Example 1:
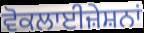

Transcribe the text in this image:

ਵੋਕਲਾਈਜ਼ੇਸ਼ਨਾਂ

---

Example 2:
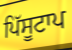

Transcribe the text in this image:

ਪਿੱਸੂਟਾਪ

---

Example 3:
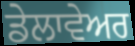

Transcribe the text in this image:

ਡੇਲਾਵੇਅਰ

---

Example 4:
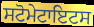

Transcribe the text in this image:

ਸਟੋਮੇਟਾਇਟਸ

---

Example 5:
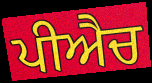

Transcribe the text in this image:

ਪੀਐਚ